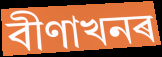
বীণাখনৰ